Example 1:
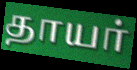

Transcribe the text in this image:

தாயர்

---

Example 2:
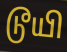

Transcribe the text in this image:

டூயி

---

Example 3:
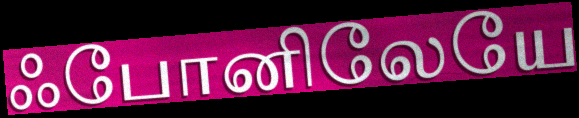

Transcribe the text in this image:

ஃபோனிலேயே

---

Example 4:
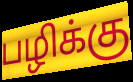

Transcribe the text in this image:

பழிக்கு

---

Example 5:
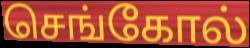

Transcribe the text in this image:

செங்கோல்